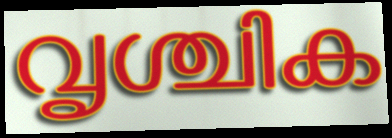
വൃശ്ചിക